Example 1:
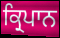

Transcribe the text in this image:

ਕ੍ਰਿਪਾਨ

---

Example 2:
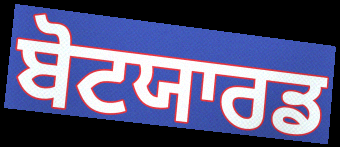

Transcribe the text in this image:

ਬੋਟਯਾਰਡ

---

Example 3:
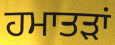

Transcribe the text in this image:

ਹਮਾਤੜਾਂ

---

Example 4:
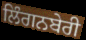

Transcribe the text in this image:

ਲਿੰਗਨਬੇਰੀ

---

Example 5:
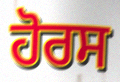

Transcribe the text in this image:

ਹੋਰਸ